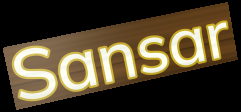
Sansar